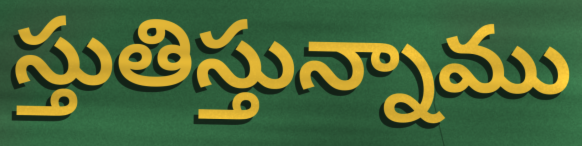
స్తుతిస్తున్నాము